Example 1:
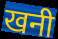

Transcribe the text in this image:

खनी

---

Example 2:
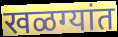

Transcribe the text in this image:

खळग्यांत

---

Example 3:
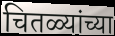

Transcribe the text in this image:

चितळ्यांच्या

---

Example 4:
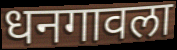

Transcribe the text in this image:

धनगावला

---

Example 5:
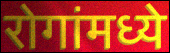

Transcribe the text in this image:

रोगांमध्ये